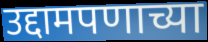
उद्दामपणाच्या